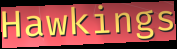
Hawkings